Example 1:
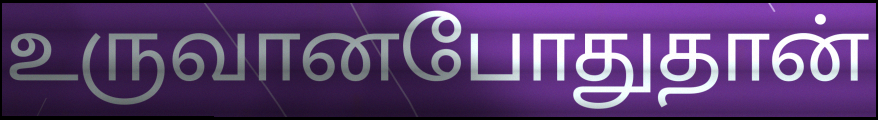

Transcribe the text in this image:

உருவானபோதுதான்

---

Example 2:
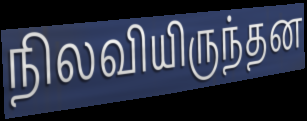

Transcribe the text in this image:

நிலவியிருந்தன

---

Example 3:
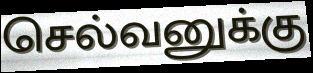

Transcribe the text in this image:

செல்வனுக்கு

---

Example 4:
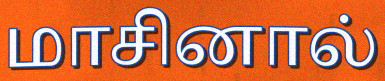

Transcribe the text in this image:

மாசினால்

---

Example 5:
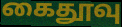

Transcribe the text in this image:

கைதூவு